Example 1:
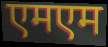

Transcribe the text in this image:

एमएम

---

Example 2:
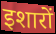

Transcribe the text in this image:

इशारों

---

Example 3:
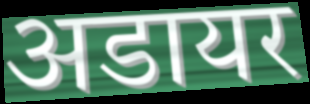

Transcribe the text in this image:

अडायर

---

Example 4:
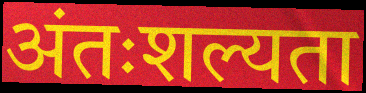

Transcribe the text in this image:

अंतःशल्यता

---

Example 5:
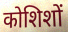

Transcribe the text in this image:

कोशिशों